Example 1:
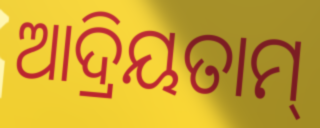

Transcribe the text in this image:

ଆଦ୍ରିୟତାମ୍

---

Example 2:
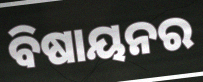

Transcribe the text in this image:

ବିଷାୟନର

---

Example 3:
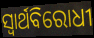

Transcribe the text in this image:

ସ୍ବାର୍ଥବିରୋଧୀ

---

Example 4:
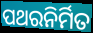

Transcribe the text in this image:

ପଥରନିର୍ମିତ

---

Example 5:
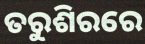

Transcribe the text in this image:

ତରୁଶିରରେ